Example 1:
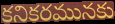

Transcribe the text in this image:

కనికరమునకు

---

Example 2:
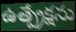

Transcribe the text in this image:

ఉత్ప్రేక్షను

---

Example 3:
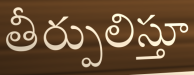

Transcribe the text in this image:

తీర్పులిస్తూ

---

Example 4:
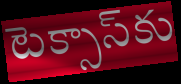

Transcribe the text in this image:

టెక్సాస్‌కు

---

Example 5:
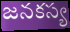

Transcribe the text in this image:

జనకస్య